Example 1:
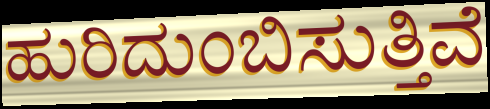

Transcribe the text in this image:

ಹುರಿದುಂಬಿಸುತ್ತಿವೆ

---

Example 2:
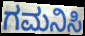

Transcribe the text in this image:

ಗಮನಿಸಿ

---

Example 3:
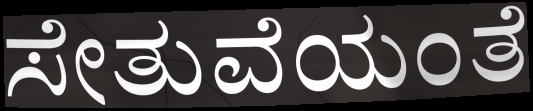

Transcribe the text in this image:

ಸೇತುವೆಯಂತೆ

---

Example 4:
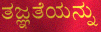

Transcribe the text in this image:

ತಜ್ಞತೆಯನ್ನು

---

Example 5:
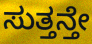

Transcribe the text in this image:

ಸುತ್ತನ್ತೇ